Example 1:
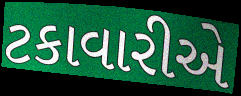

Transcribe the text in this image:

ટકાવારીએ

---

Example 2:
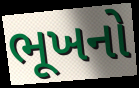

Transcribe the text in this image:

ભૂખનો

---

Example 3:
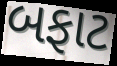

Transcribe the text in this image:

બફાટ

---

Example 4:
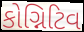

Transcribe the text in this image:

કોગ્નિટિવ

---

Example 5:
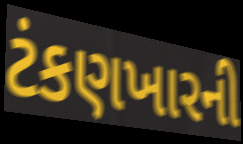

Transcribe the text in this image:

ટંકણખારની